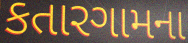
કતારગામના